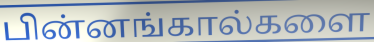
பின்னங்கால்களை